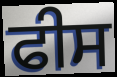
ਫੀਸ